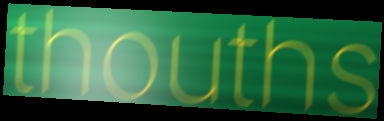
thouths